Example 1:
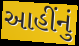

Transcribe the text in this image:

આહીંનું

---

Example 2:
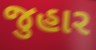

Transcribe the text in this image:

જુહાર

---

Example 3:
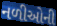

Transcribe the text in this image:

નળીઓની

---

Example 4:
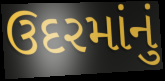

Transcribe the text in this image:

ઉદરમાંનું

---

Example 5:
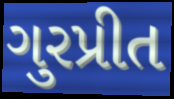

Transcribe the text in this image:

ગુરપ્રીત